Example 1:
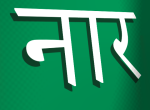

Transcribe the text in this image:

नार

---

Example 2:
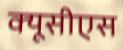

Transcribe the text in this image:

क्यूसीएस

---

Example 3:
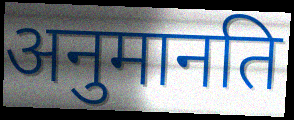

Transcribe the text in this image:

अनुमानति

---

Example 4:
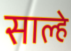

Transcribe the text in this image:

साल्हे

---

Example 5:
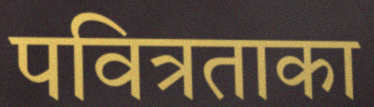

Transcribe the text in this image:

पवित्रताका